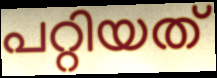
പറ്റിയത്